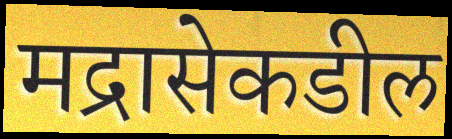
मद्रासेकडील